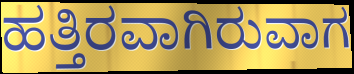
ಹತ್ತಿರವಾಗಿರುವಾಗ